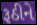
રૂઠીને